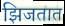
झिजतात